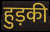
हुड़की